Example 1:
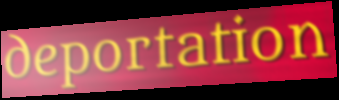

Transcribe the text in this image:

deportation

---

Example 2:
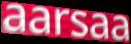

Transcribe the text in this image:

aarsaa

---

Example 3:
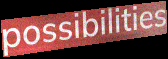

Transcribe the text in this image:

possibilities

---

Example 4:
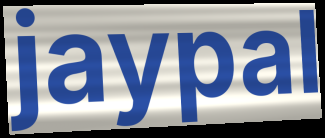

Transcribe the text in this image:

jaypal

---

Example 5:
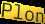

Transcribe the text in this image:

Plon